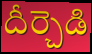
దీర్చెడి